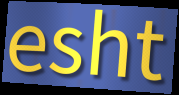
esht